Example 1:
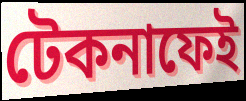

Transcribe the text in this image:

টেকনাফেই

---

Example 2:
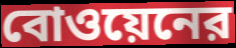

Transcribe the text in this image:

বোওয়েনের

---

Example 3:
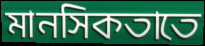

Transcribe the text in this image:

মানসিকতাতে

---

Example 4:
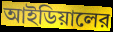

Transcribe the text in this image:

আইডিয়ালের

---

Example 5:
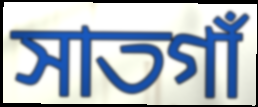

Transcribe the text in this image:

সাতগাঁ